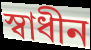
স্বাধীন